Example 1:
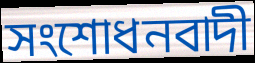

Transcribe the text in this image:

সংশোধনবাদী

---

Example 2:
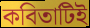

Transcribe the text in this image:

কবিতাটিই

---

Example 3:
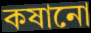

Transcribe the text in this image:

কষানো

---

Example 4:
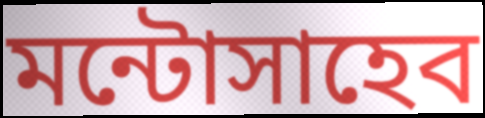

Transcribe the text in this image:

মন্টোসাহেব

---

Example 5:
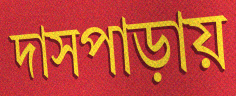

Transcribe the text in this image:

দাসপাড়ায়